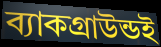
ব্যাকগ্রাউন্ডই